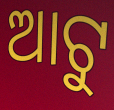
ଆଟୁ